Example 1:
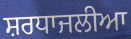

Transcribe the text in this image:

ਸ਼ਰਧਾਜਲੀਆ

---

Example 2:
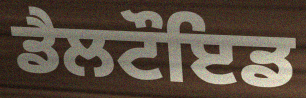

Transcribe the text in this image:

ਡੈਲਟੌਇਡ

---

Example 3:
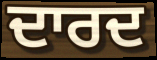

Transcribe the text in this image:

ਦਾਰਦ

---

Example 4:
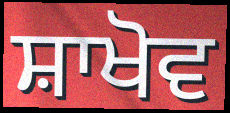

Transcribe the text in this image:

ਸ਼ਾਖੋਵ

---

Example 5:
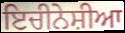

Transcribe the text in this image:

ਇਚੀਨੇਸ਼ੀਆ